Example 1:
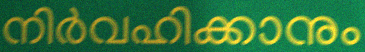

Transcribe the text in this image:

നിർവഹിക്കാനും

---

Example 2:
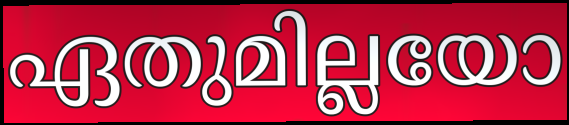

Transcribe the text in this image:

ഏതുമില്ലയോ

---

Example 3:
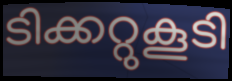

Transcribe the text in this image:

ടിക്കറ്റുകൂടി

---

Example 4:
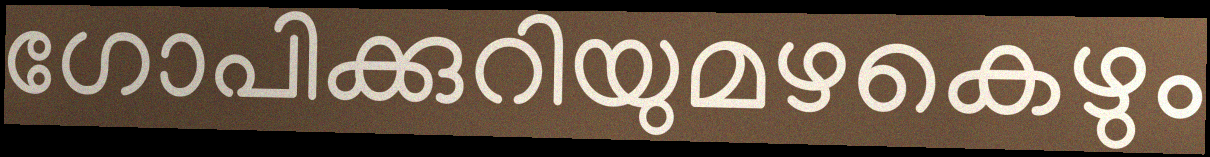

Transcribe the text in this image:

ഗോപിക്കുറിയുമഴകെഴും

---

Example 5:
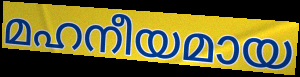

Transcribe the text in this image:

മഹനീയമായ